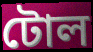
টোল